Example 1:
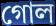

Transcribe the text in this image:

গোল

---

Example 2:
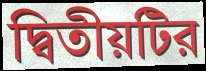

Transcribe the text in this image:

দ্বিতীয়টির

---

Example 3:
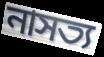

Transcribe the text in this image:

নাসত্য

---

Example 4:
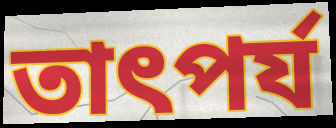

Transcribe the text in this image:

তাৎপর্য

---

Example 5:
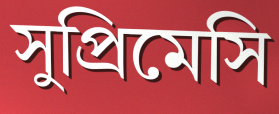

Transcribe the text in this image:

সুপ্রিমেসি